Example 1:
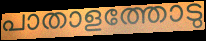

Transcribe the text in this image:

പാതാളത്തോടു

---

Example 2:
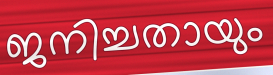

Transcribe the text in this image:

ജനിച്ചതായും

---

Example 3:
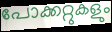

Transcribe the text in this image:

പോക്കറ്റുകളും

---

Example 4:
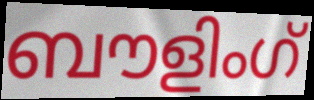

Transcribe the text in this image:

ബൗളിംഗ്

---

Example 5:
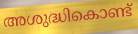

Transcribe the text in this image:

അശുദ്ധികൊണ്ട്